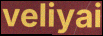
veliyai